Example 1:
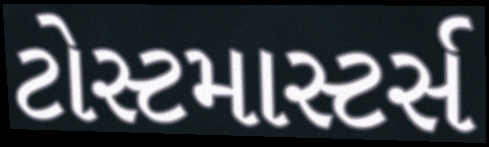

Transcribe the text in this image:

ટોસ્ટમાસ્ટર્સ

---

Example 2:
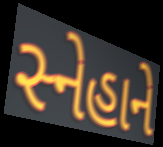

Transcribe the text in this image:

સ્નેહાને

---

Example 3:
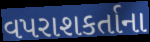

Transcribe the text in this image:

વપરાશકર્તાના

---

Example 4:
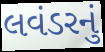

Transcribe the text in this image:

લવંડરનું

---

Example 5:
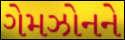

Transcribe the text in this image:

ગેમઝોનને